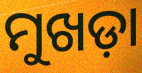
ମୁଖଡ଼ା